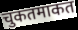
चुकतमाकत